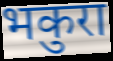
भकुरा